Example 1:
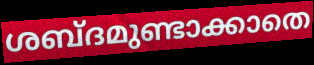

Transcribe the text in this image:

ശബ്ദമുണ്ടാക്കാതെ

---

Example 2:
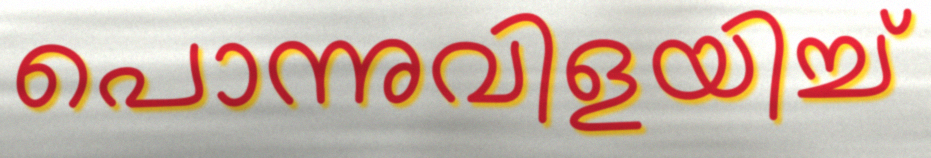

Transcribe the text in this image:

പൊന്നുവിളയിച്ച്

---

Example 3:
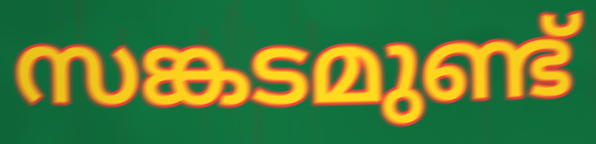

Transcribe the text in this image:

സങ്കടമുണ്ട്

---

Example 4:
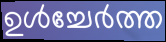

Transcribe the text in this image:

ഉൾച്ചേർത്ത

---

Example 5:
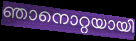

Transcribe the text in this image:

ഞാനൊറ്റയായി